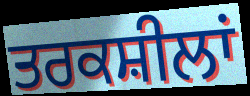
ਤਰਕਸ਼ੀਲਾਂ